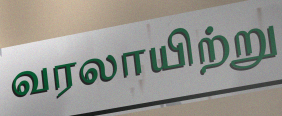
வரலாயிற்று